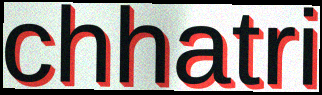
chhatri